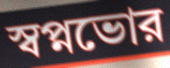
স্বপ্নভোর